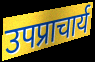
उपप्राचार्य